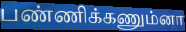
பண்ணிக்கணும்னா